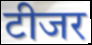
टीजर